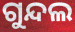
ଗୁନ୍ଦଲ